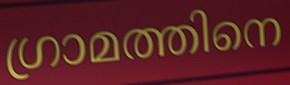
ഗ്രാമത്തിനെ